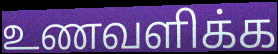
உணவளிக்க